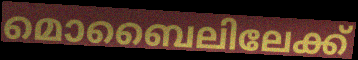
മൊബൈലിലേക്ക്